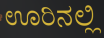
ಊರಿನಲ್ಲಿ